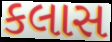
કલાસ